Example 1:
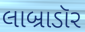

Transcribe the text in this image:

લાબ્રાડૉર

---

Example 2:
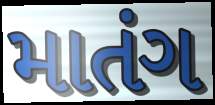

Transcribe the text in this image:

માતંગ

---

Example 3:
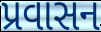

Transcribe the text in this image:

પ્રવાસન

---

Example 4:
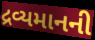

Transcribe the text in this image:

દ્રવ્યમાનની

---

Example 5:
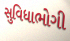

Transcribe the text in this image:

સુવિધાભોગી